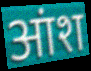
आंश